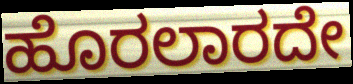
ಹೊರಲಾರದೇ